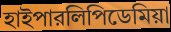
হাইপারলিপিডেমিয়া